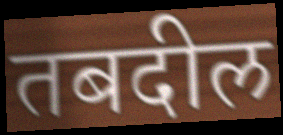
तबदील